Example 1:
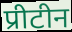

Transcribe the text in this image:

प्रीटीन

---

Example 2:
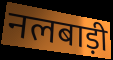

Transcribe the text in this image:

नलबाड़ी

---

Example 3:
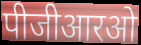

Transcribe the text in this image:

पीजीआरओ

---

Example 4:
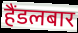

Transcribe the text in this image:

हैंडलबार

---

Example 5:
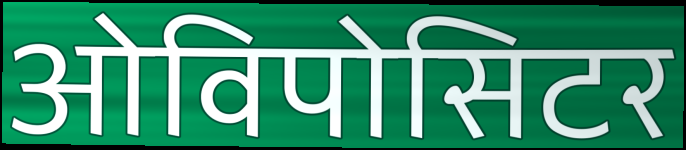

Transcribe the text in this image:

ओविपोसिटर